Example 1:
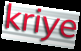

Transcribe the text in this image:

kriye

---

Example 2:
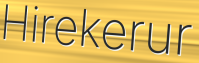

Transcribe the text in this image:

Hirekerur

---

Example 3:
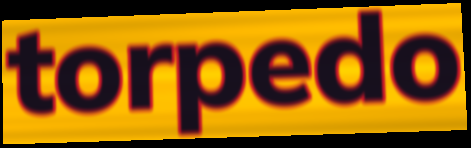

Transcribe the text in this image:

torpedo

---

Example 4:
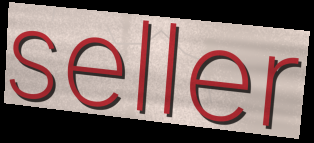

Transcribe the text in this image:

seller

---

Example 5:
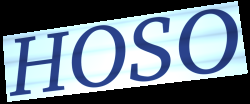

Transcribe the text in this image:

HOSO